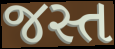
જસ્ત